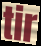
tir